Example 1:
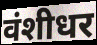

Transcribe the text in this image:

वंशीधर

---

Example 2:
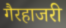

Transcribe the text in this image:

गैरहाजरी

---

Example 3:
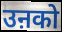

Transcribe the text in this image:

उऩको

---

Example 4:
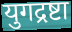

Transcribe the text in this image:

युगद्रष्टा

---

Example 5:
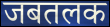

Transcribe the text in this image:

जबतलक